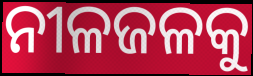
ନୀଳଜଳକୁ